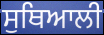
ਸੁਥਿਆਲੀ